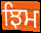
ਝਿਮ